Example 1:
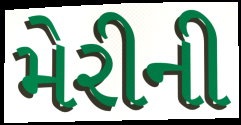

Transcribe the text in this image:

મેરીની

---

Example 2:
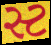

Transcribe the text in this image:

સ્ટ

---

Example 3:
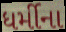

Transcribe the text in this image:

ધર્મીના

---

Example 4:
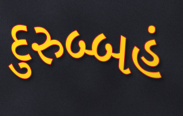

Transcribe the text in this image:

દુરુબ્બહં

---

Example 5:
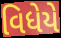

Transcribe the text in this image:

વિધેયે